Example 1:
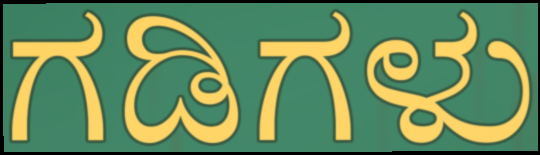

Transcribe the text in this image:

ಗಡಿಗಳು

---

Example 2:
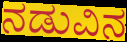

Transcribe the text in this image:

ನಡುವಿನ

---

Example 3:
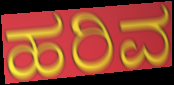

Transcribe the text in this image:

ಹರಿವ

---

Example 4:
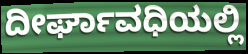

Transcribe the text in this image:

ದೀರ್ಘಾವಧಿಯಲ್ಲಿ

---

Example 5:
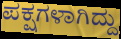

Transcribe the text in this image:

ಪಕ್ಷಗಳಾಗಿದ್ದು